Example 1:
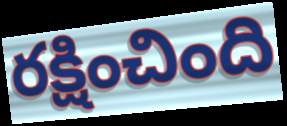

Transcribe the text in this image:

రక్షించింది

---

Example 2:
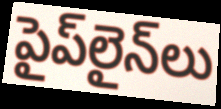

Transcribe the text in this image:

పైప్‌లైన్‌లు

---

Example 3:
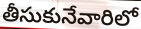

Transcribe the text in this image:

తీసుకునేవారిలో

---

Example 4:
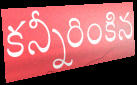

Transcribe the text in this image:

కన్నీరింకిన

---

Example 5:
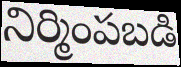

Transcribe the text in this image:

నిర్మింపబడి